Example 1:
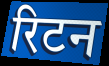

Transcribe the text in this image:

रिटन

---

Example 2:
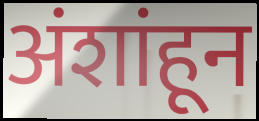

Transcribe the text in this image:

अंशांहून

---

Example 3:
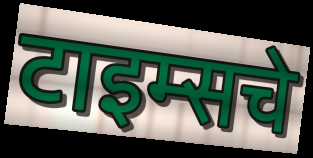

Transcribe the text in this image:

टाइम्सचे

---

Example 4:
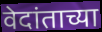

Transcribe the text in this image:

वेदांताच्या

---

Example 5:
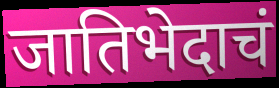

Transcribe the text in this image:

जातिभेदाचं